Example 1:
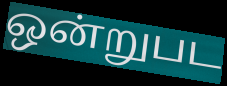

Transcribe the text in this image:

ஒன்றுபட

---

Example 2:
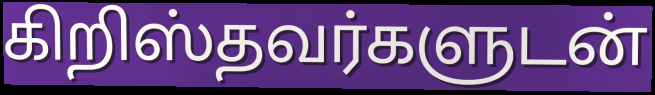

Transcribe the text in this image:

கிறிஸ்தவர்களுடன்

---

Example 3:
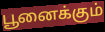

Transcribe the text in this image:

பூனைக்கும்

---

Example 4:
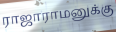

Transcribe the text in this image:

ராஜாராமனுக்கு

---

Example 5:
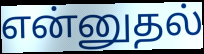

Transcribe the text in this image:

என்னுதல்